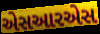
એસઆરએસ